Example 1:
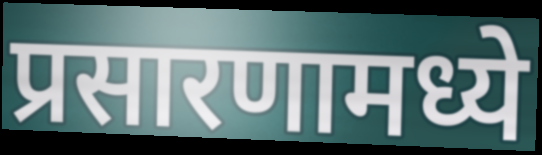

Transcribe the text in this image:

प्रसारणामध्ये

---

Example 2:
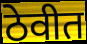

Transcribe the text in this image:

ठेवीत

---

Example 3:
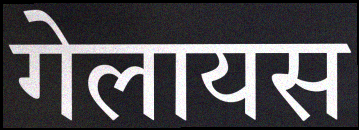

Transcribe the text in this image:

गेलायस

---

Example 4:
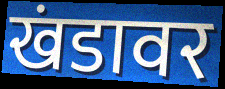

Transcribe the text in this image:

खंडावर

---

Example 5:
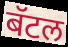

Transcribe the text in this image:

बॅटल